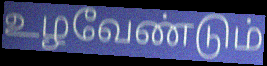
உழவேண்டும்